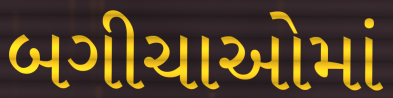
બગીચાઓમાં